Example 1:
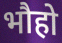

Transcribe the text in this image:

भौहो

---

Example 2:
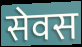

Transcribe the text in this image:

सेवस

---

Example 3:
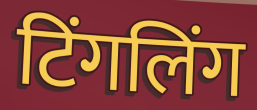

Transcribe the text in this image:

टिंगलिंग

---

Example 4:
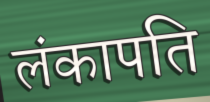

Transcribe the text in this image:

लंकापति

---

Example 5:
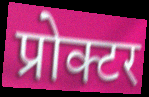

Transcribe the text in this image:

प्रोक्टर